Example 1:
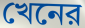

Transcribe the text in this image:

খেনের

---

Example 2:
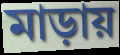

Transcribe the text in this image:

মাড়ায়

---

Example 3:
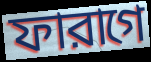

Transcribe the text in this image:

ফারাগে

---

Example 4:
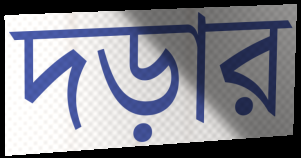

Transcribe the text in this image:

দড়ার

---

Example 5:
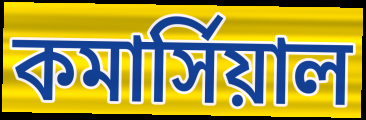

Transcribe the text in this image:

কমার্সিয়াল